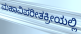
ಮಹಾವಿಪರೀತಕ್ರೀಯಲ್ಲಿ